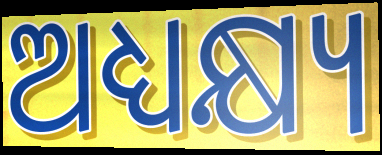
ଅଧ୍ୟକ୍ଷ୍ୟ